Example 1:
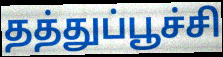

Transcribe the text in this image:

தத்துப்பூச்சி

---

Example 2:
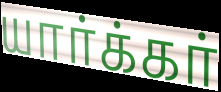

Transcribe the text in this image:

யார்க்கர்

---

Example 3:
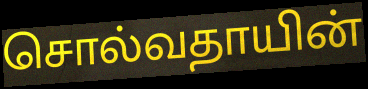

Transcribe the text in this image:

சொல்வதாயின்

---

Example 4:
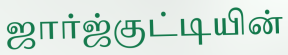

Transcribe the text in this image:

ஜார்ஜ்குட்டியின்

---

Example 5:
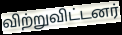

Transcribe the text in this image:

விற்றுவிட்டனர்